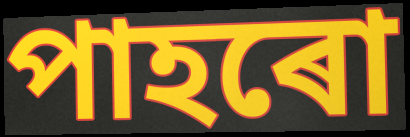
পাহৰো